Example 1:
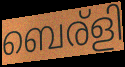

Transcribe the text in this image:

ബെര്ളി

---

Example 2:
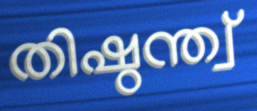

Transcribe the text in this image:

തിഷ്ഠന്ത്വ്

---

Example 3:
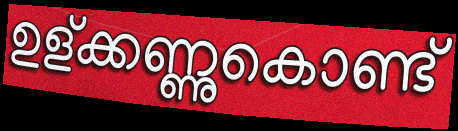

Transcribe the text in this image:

ഉള്ക്കണ്ണുകൊണ്ട്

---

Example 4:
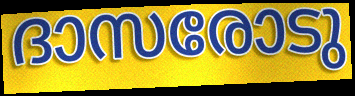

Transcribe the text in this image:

ദാസരോടു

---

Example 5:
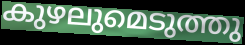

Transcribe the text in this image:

കുഴലുമെടുത്തു